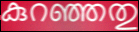
കുറഞ്ഞതു